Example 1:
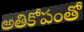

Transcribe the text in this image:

అతికోపంతో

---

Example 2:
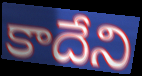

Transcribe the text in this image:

కాదేని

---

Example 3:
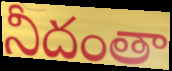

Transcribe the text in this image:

నీదంతా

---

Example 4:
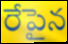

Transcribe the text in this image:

రేపైన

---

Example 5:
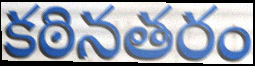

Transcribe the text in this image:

కఠినతరం